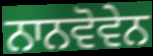
ਨਾਨਵੋਵੇਨ